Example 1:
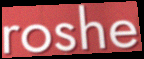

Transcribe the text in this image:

roshe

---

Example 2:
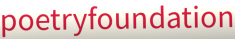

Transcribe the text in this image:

poetryfoundation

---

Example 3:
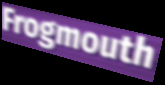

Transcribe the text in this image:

Frogmouth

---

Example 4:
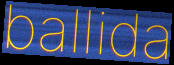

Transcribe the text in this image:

ballida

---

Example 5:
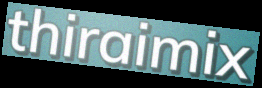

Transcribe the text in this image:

thiraimix